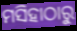
ମସିହାଠାରୁ